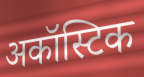
अकॉस्टिक